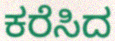
ಕರೆಸಿದ